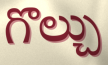
గొల్చు